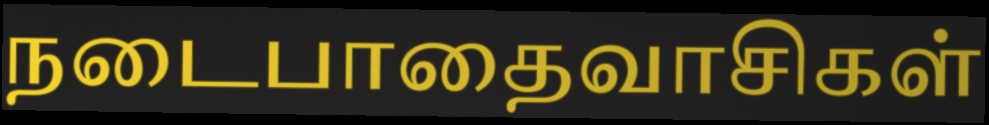
நடைபாதைவாசிகள்